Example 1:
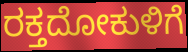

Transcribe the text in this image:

ರಕ್ತದೋಕುಳಿಗೆ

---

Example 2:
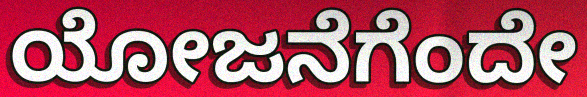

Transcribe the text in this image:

ಯೋಜನೆಗೆಂದೇ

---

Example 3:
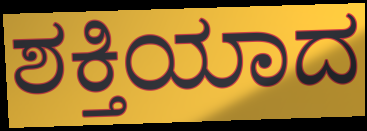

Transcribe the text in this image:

ಶಕ್ತಿಯಾದ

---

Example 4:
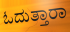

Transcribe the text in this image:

ಓದುತ್ತಾರಾ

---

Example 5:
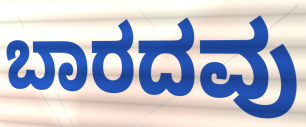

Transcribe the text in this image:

ಬಾರದವು